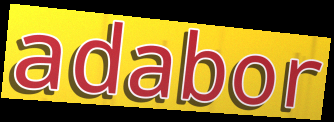
adabor